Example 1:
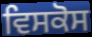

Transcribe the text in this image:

ਵਿਸਕੋਸ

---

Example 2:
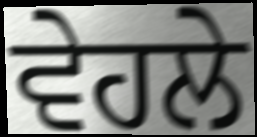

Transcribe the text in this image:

ਵੇਹਲੇ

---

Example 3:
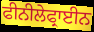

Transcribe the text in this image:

ਫੀਨੀਲੇਫ੍ਰਾਈਨ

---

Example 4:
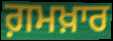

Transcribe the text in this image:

ਗ਼ਮਖ਼ਾਰ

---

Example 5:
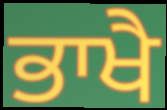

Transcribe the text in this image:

ਭਾਖੈ